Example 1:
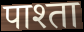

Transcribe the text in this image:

पाश्ता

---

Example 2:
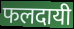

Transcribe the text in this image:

फलदायी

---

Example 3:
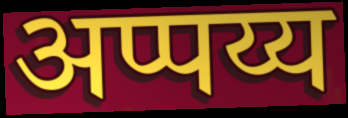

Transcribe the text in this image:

अप्पय्य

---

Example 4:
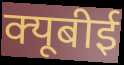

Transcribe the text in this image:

क्यूबीई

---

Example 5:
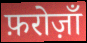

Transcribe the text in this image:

फ़रोज़ाँ